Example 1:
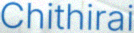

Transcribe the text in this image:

Chithirai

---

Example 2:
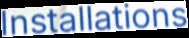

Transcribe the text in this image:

Installations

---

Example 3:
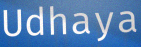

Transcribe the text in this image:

Udhaya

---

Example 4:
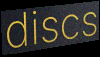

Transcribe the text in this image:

discs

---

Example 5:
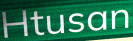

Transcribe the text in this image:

Htusan